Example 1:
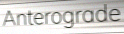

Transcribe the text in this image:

Anterograde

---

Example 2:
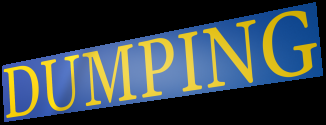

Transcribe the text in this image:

DUMPING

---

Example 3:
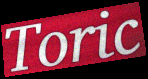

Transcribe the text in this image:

Toric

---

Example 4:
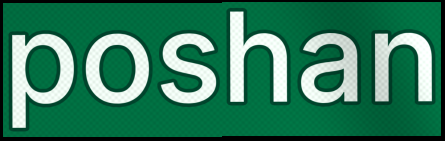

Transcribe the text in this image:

poshan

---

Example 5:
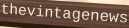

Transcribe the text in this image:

thevintagenews